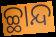
ଚ୍ଛାନ୍ଦ